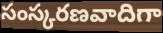
సంస్కరణవాదిగా